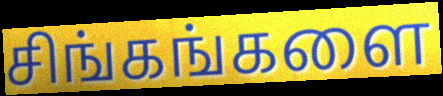
சிங்கங்களை